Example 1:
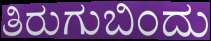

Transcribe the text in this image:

ತಿರುಗುಬಿಂದು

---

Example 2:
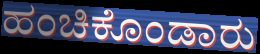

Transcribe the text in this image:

ಹಂಚಿಕೊಂಡಾರು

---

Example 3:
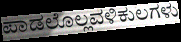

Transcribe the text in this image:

ಪಾಡಲೊಲ್ಲವಳಿಕುಲಗಳು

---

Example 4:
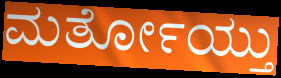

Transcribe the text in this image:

ಮರ್ತೋಯ್ತು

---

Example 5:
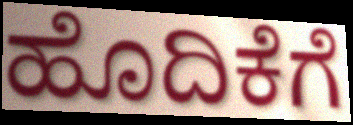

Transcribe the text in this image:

ಹೊದಿಕೆಗೆ